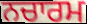
ਨਚਾਰਮ